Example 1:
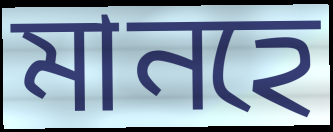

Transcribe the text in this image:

মানহে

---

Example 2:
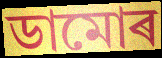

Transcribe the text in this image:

ডামোৰ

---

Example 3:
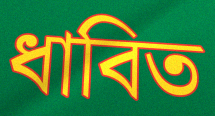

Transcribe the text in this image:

ধাবিত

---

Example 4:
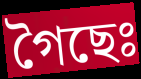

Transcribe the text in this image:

গৈছেঃ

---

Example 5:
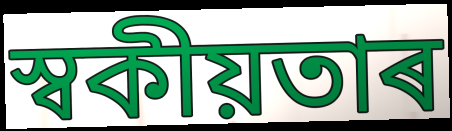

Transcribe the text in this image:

স্বকীয়তাৰ